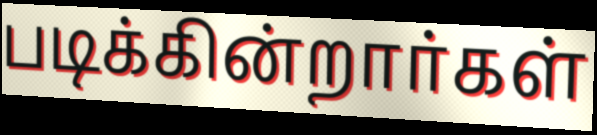
படிக்கின்றார்கள்